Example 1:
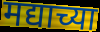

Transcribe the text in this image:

मद्याच्या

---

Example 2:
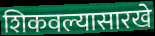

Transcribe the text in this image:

शिकवल्यासारखे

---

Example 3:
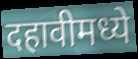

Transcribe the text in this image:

दहावीमध्ये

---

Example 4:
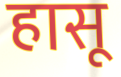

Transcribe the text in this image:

हासू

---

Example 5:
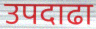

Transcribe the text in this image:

उपदाढा